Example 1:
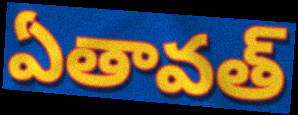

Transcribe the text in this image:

ఏతావత్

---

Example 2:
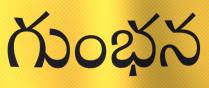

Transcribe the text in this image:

గుంభన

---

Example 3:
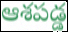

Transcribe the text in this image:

ఆశపడ్డ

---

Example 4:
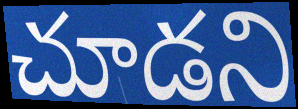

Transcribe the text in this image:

చూడని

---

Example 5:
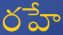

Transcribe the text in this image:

రహే